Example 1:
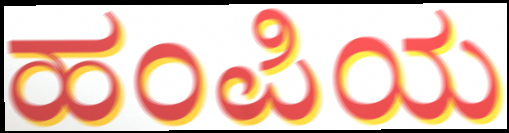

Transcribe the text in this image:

ಹಂಪಿಯ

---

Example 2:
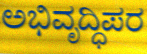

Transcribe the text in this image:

ಅಭಿವೃದ್ಧಿಪರ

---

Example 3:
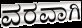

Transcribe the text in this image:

ವರವಾಗಿ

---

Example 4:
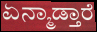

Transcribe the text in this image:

ಏನ್ಮಾಡ್ತಾರೆ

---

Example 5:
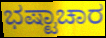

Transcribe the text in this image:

ಭಷ್ಟಾಚಾರ